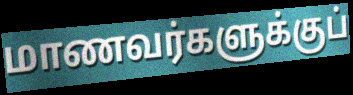
மாணவர்களுக்குப்